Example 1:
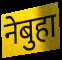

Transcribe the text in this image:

नेबुहा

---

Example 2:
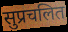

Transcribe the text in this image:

सुप्रचलित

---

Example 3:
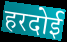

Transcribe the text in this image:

हरदोई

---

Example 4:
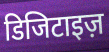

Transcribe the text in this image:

डिजिटाइज़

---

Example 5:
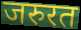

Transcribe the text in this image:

जरुरत